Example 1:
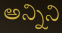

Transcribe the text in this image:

అన్నిని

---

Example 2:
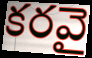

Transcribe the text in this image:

కరవై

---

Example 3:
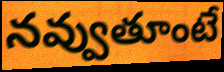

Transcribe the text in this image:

నవ్వుతూంటే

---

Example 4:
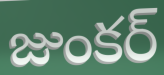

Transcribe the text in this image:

జుంకర్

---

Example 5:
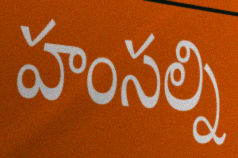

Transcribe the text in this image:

హంసల్ని